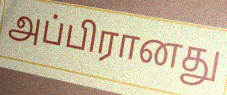
அப்பிரானது